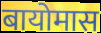
बायोमास